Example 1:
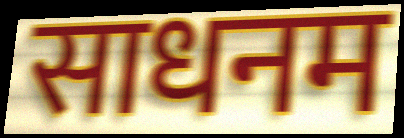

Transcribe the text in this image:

साधनम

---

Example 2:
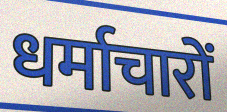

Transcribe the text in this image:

धर्माचारों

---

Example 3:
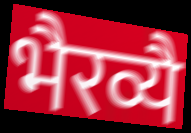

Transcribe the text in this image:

भैरव्यै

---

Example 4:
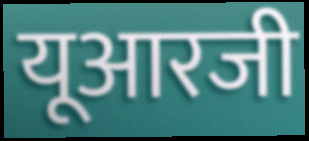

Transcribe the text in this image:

यूआरजी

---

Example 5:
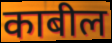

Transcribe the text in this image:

काबील